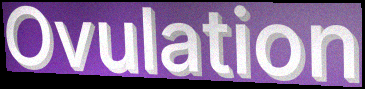
Ovulation